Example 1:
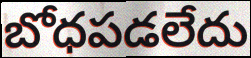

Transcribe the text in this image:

బోధపడలేదు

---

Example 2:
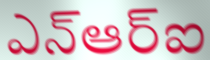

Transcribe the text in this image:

ఎన్ఆర్ఐ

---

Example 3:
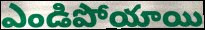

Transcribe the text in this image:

ఎండిపోయాయి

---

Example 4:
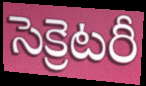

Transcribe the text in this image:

సెక్రెటరీ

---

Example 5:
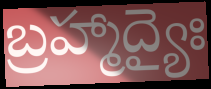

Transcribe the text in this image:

బ్రహ్మాద్యైః